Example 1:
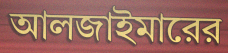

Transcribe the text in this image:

আলজাইমারের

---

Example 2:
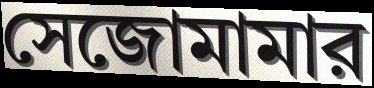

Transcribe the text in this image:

সেজোমামার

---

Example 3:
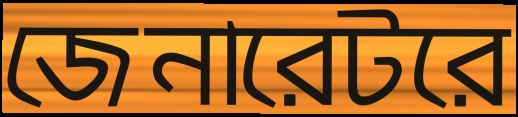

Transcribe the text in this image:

জেনারেটরে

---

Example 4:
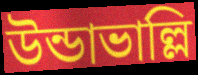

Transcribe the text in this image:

উন্ডাভাল্লি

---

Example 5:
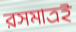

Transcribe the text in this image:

রসমাত্রই